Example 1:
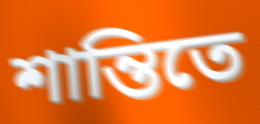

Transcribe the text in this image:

শান্তিতে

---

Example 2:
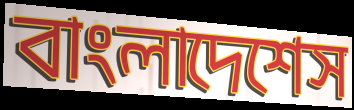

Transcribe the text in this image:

বাংলাদেশেস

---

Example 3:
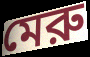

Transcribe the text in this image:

মেরু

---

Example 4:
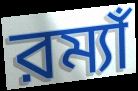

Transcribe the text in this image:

রম্যাঁ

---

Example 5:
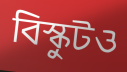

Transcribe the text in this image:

বিস্কুটও